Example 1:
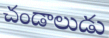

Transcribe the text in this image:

చండాలుడు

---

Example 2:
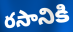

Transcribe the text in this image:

రసానికి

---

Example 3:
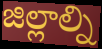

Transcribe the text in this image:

జిల్లాల్ని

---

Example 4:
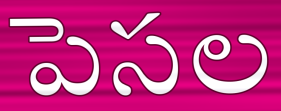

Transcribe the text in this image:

పెసల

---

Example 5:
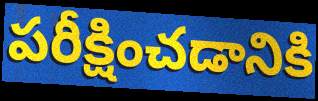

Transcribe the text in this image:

పరీక్షించడానికి